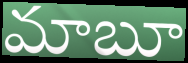
మాబూ